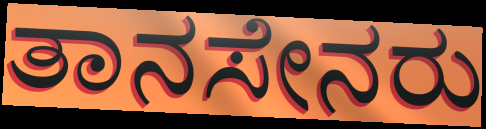
ತಾನಸೇನರು